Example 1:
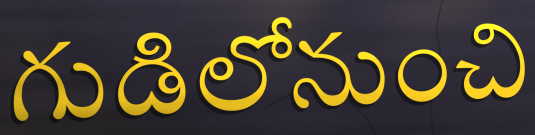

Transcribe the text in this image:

గుడిలోనుంచి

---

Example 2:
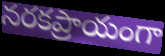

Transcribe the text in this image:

నరకప్రాయంగా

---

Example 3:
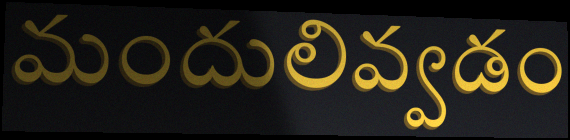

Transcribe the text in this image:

మందులివ్వడం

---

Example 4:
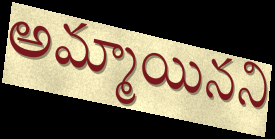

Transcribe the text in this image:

అమ్మాయినని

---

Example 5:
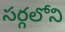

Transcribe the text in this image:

సర్గలోని